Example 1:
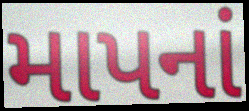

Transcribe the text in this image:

માપનાં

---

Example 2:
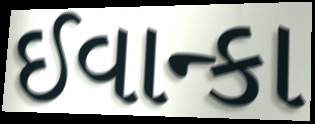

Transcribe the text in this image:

ઈવાન્કા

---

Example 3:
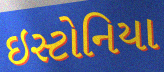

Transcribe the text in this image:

ઇસ્ટોનિયા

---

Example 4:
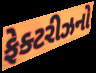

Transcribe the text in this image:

ફેક્ટરીઝનો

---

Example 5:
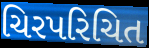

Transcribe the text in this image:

ચિરપરિચિત